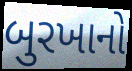
બુરખાનો